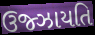
ઉજ્ઝાયતિ